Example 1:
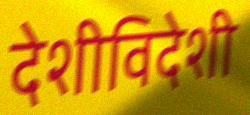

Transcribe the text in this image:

देशीविदेशी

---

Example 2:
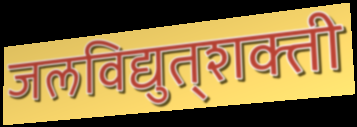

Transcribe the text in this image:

जलविद्युत्‌शक्ती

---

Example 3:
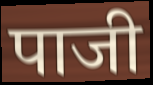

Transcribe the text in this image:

पाजी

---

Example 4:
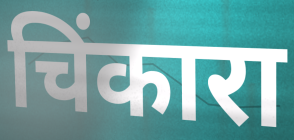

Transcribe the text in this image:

चिंकारा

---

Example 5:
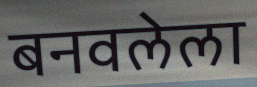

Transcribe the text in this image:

बनवलेला